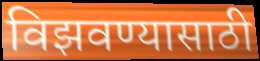
विझवण्यासाठी